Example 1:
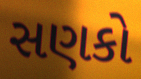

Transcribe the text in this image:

સણકો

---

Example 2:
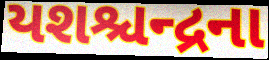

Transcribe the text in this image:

યશશ્ચન્દ્રના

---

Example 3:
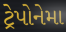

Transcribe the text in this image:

ટ્રેપોનેમા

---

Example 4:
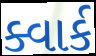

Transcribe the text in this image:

ક્વાર્ક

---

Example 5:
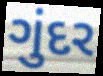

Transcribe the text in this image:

ગુંદર